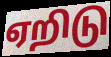
ஏறிடு